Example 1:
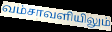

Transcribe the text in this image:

வம்சாவளியிலும்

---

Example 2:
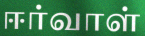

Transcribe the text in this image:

ஈர்வாள்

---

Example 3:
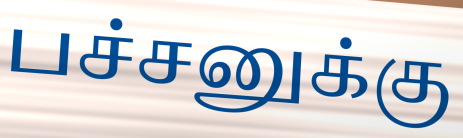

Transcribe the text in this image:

பச்சனுக்கு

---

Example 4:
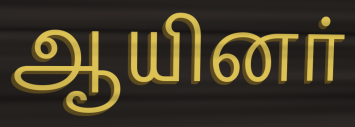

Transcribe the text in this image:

ஆயினர்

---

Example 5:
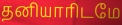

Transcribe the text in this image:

தனியாரிடமே